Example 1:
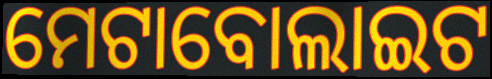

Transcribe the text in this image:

ମେଟାବୋଲାଇଟ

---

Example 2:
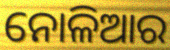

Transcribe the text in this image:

ନୋଳିଆର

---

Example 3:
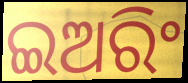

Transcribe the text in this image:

ଇଅରିଂ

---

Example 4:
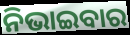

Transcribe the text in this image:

ନିଭାଇବାର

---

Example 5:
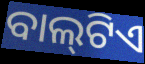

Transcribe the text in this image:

ବାଲ୍‍ଟିଏ